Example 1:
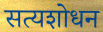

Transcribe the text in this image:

सत्यशोधन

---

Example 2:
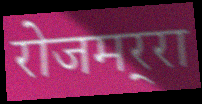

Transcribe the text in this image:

रोजमर्रा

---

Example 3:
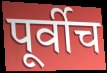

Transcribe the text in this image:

पूर्वीच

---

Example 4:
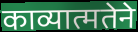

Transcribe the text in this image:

काव्यात्मतेने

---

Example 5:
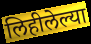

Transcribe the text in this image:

लिहीलेल्या